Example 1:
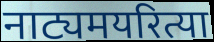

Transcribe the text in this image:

नाट्यमयरित्या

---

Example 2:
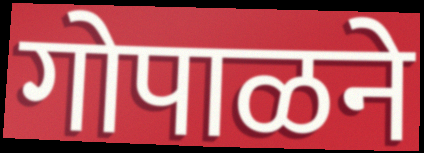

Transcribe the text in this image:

गोपाळने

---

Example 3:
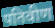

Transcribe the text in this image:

पतिवीण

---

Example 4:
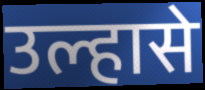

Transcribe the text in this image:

उल्हासे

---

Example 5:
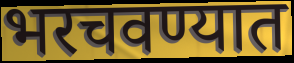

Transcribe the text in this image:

भरचवण्यात